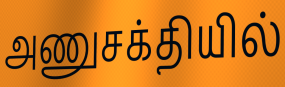
அணுசக்தியில்